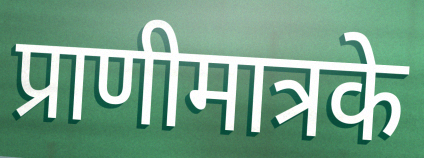
प्राणीमात्रके